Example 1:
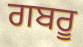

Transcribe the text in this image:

ਗਬਰੂ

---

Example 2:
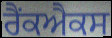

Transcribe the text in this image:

ਰੈਂਕਐਕਸ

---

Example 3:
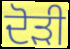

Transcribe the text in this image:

ਦੋੜੀ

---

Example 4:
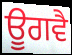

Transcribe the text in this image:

ਊਗਵੈ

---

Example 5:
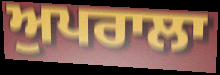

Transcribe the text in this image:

ਅੁਪਰਾਲਾ